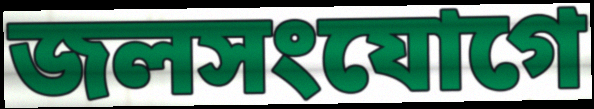
জলসংযোগে